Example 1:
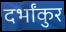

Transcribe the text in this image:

दर्भांकुर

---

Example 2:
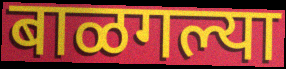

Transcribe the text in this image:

बाळगल्या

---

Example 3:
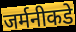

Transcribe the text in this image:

जर्मनीकडे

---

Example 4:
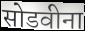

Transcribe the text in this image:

सोडवीना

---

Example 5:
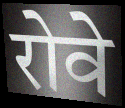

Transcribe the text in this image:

रोवे